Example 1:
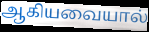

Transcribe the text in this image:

ஆகியவையால்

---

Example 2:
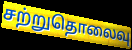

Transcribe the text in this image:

சற்றுதொலைவு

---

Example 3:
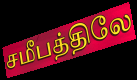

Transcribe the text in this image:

சமீபத்திலே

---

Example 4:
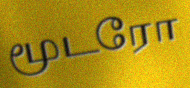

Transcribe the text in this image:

மூடரோ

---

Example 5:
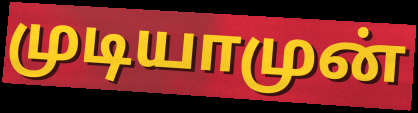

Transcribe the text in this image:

முடியாமுன்